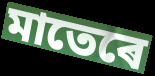
মাতেৰে